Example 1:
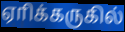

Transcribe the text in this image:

ஏரிக்கருகில்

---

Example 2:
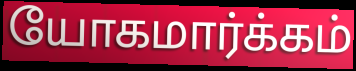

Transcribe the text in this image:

யோகமார்க்கம்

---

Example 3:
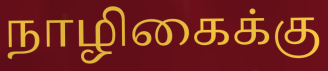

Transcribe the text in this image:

நாழிகைக்கு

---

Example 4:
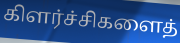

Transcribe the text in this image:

கிளர்ச்சிகளைத்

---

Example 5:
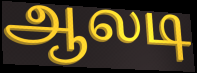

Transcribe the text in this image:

ஆலடி